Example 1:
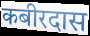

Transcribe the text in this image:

कबीरदास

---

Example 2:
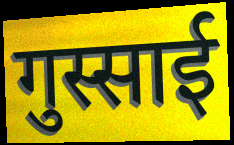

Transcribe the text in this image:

गुस्साई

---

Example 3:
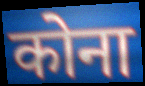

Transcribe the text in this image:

कोना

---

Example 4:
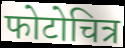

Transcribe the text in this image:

फोटोचित्र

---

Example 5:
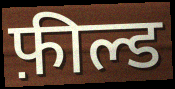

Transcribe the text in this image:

फ़ील्ड